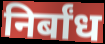
निर्बांध